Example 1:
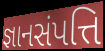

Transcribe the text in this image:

જ્ઞાનસંપત્તિ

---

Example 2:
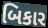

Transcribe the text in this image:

બિકાર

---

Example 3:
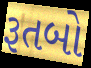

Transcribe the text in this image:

રૂતબો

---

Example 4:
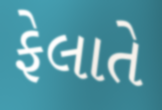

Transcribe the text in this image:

ફેલાતે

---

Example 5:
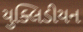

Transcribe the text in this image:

યુક્લિડીયન